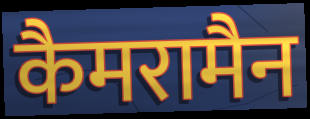
कैमरामैन